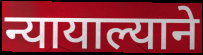
न्यायाल्याने